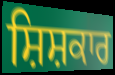
ਸ਼ਿਸ਼ਕਾਰ